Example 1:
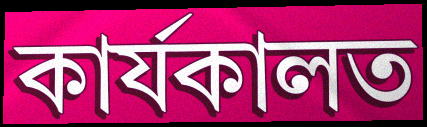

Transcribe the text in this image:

কাৰ্যকালত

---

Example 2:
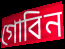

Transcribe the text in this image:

গোবিন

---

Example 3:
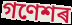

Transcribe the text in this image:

গণেশৰ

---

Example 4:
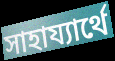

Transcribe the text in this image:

সাহায্যাৰ্থে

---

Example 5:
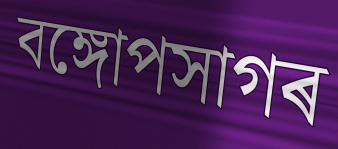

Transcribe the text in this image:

বঙ্গোপসাগৰ